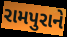
રામપુરાને